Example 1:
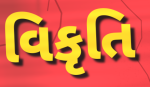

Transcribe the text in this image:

વિકૃતિ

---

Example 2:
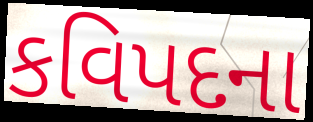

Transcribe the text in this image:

કવિપદના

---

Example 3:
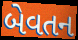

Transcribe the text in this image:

બેવતન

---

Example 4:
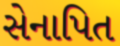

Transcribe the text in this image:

સેનાપિત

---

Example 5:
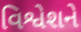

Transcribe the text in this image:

વિશ્વેશને